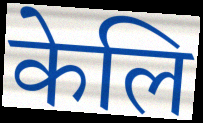
केलि